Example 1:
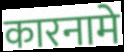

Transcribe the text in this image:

कारनामे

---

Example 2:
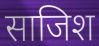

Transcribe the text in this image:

साजिश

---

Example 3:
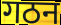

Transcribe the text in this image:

गठन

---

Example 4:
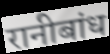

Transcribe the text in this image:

रानीबांध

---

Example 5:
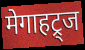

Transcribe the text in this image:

मेगाहट्र्ज